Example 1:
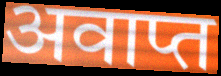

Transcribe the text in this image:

अवाप्त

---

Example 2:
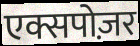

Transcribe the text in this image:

एक्सपोज़र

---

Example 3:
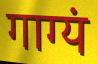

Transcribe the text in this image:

गाग्यं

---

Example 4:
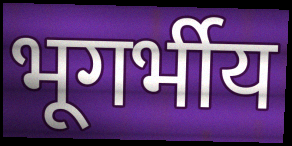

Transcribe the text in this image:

भूगर्भीय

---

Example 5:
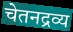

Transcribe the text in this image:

चेतनद्रव्य